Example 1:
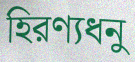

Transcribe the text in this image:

হিরণ্যধনু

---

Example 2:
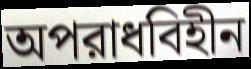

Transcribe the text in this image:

অপরাধবিহীন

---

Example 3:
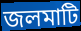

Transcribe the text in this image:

জলমাটি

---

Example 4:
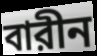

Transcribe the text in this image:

বারীন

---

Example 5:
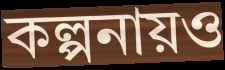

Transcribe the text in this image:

কল্পনায়ও